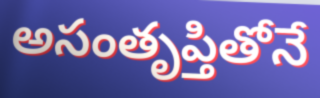
అసంతృప్తితోనే